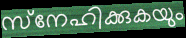
സ്‌നേഹിക്കുകയും